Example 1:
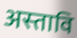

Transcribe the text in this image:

अस्तावि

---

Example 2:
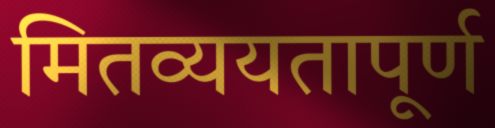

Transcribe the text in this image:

मितव्ययतापूर्ण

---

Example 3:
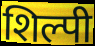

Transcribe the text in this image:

शिल्पी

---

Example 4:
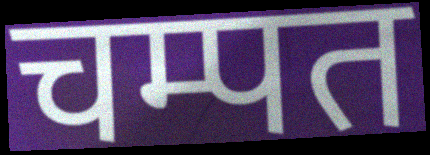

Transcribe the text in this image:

चम्पत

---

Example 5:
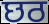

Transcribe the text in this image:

छठ